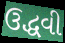
ઉદ્ધવી